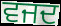
ਵਜਦ